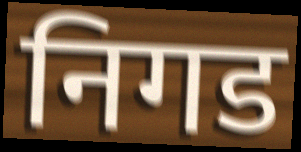
निगड